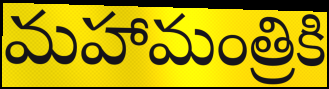
మహామంత్రికి